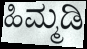
ಹಿಮ್ಮಡಿ